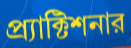
প্র্যাক্টিশনার